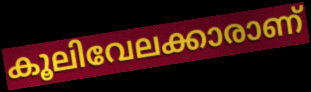
കൂലിവേലക്കാരാണ്